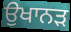
ਉਖਾਨੜ